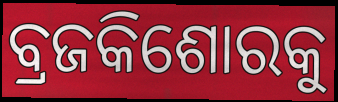
ବ୍ରଜକିଶୋରକୁ